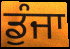
ਡੁੰਜਾ